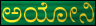
ಅಯೋನಿ